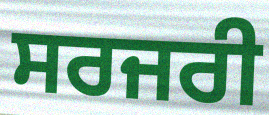
ਸਰਜਰੀ